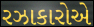
રઝાકારોએ